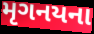
મૃગનયના